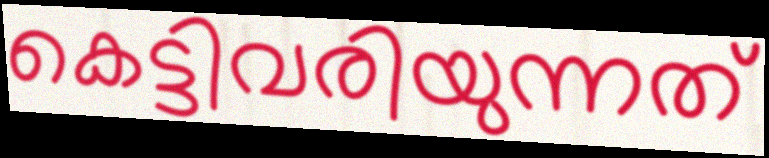
കെട്ടിവരിയുന്നത്